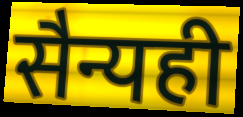
सैन्यही